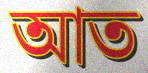
আত